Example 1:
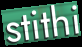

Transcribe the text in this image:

stithi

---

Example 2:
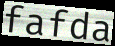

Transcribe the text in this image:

fafda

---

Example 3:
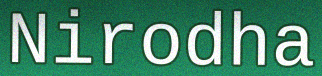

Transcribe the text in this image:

Nirodha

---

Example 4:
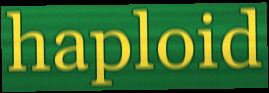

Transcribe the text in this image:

haploid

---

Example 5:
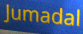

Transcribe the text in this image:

Jumadal